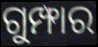
ଗୁମ୍ଫାର